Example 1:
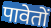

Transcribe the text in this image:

पावेतों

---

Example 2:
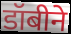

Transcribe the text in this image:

डॉबीने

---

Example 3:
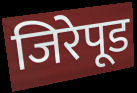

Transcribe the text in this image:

जिरेपूड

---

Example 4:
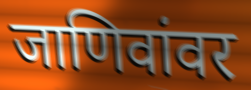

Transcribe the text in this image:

जाणिवांवर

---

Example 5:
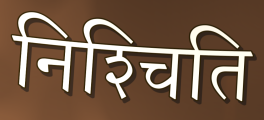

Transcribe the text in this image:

निश्चिति